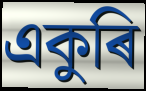
একুৰি